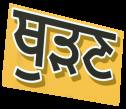
ਥੁੜਣ